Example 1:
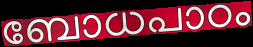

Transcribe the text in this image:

ബോധപാഠം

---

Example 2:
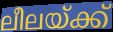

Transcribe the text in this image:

ലീലയ്ക്ക്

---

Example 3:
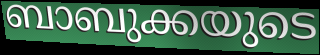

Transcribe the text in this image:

ബാബുക്കയുടെ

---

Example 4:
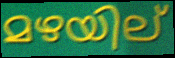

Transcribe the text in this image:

മഴയില്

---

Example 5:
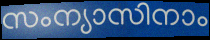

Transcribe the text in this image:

സംന്യാസിനാം